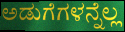
ಅಡುಗೆಗಳನ್ನೆಲ್ಲ